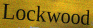
Lockwood